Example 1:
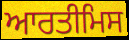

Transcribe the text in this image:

ਆਰਤੀਮਿਸ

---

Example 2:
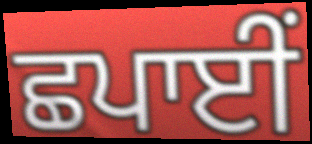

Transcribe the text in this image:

ਛਪਾਈਂ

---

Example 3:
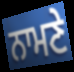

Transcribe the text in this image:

ਨਾਮਣੇ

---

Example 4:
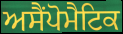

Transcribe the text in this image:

ਅਸੈਂਪੋਮੈਟਿਕ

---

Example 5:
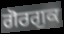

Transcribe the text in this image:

ਗੋਰਗੁਕ